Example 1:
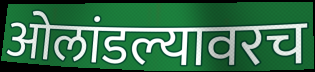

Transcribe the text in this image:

ओलांडल्यावरच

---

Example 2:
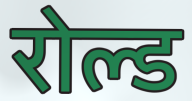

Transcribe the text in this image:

रोल्ड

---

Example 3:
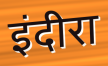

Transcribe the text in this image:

इंदीरा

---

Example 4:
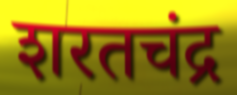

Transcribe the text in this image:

शरतचंद्र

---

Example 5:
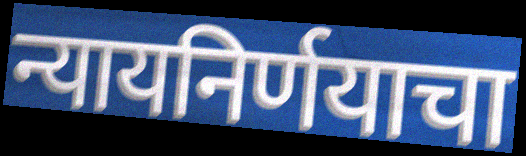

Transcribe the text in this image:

न्यायनिर्णयाचा